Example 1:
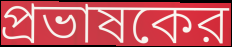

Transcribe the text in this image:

প্রভাষকের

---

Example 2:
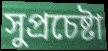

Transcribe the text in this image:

সুপ্রচেষ্টা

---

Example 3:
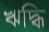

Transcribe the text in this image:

ঋদ্ধি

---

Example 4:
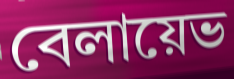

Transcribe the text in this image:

বেলায়েভ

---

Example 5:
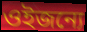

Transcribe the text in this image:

ওইজন্যে